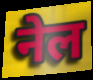
नेल